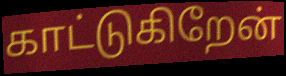
காட்டுகிறேன்